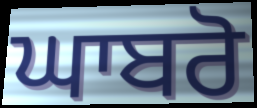
ਘਾਬਰੋ